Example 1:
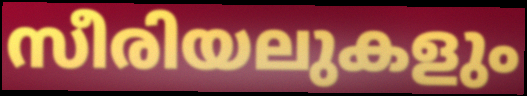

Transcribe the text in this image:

സീരിയലുകളും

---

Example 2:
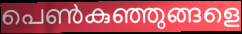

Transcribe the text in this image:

പെൺകുഞ്ഞുങ്ങളെ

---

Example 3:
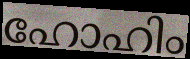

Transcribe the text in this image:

ഹോഹിം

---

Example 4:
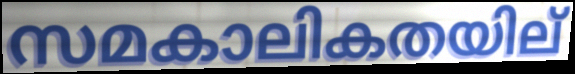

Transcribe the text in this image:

സമകാലികതയില്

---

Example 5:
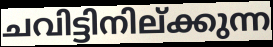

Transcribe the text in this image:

ചവിട്ടിനില്ക്കുന്ന